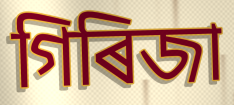
গিৰিজা